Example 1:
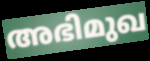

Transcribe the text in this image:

അഭിമുഖ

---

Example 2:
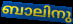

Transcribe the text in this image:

ബാലിനു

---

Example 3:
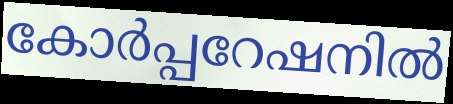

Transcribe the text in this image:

കോർപ്പറേഷനിൽ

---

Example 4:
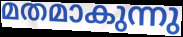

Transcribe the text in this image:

മതമാകുന്നു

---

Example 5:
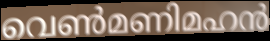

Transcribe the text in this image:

വെൺമണിമഹൻ